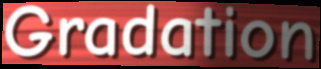
Gradation